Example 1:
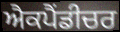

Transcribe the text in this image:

ਐਕਪੈਂਡੀਚਰ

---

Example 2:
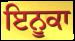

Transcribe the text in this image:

ਇਨੂਕਾ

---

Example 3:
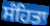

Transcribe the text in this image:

ਸੰਹਿਤਾ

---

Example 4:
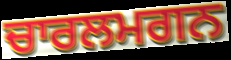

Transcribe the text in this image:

ਚਾਰਲਮਗਨ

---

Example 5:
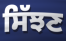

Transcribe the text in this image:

ਸਿੱਝਣ